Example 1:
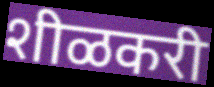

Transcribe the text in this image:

शीळकरी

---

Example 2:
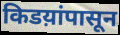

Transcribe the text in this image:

किडय़ांपासून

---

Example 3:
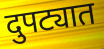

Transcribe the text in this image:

दुपट्यात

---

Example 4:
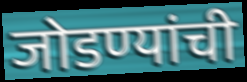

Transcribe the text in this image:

जोडण्यांची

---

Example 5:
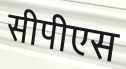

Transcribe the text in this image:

सीपीएस